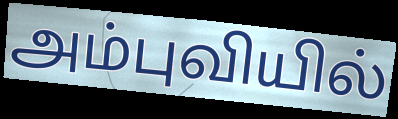
அம்புவியில்